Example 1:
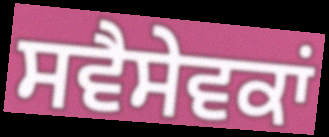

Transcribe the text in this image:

ਸਵੈਸੇਵਕਾਂ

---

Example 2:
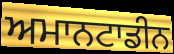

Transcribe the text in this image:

ਅਮਾਨਟਾਡੀਨ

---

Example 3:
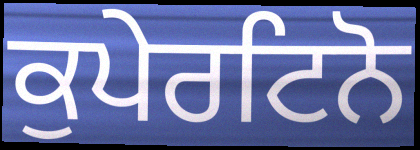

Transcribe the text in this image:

ਕੁਪੇਰਟਿਨੋ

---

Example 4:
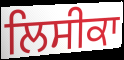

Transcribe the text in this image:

ਲਿਸੀਕਾ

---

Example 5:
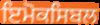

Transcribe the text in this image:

ਇਮੋਕਸਿਬਲ